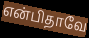
என்பிதாவே